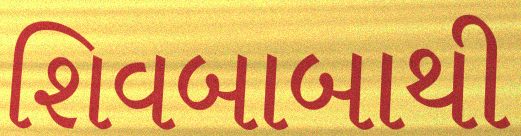
શિવબાબાથી